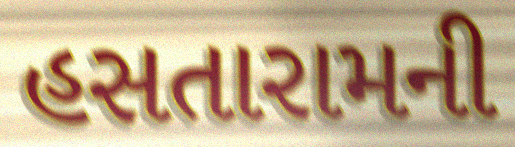
હસતારામની